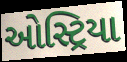
ઓસ્ટ્રિયા